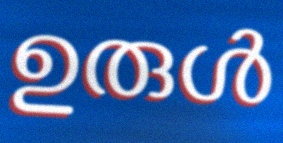
ഉരുൾ